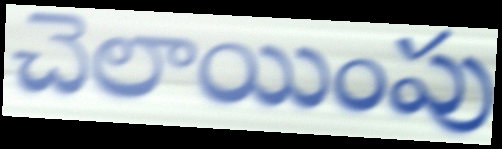
చెలాయింపు